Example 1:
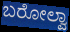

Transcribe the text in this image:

ಬರೋಲ್ವಾ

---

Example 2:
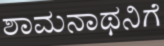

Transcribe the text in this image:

ಶಾಮನಾಥನಿಗೆ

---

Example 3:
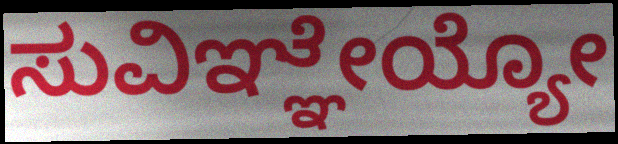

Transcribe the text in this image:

ಸುವಿಞ್ಞೇಯ್ಯೋ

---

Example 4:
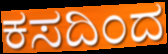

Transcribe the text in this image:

ಕಸದಿಂದ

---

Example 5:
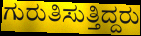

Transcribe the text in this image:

ಗುರುತಿಸುತ್ತಿದ್ದರು